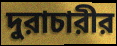
দুরাচারীর